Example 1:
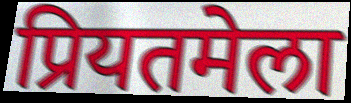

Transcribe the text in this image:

प्रियतमेला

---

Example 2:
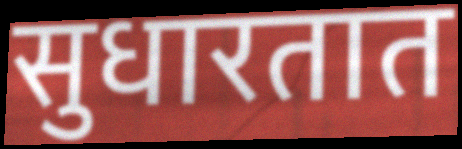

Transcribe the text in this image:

सुधारतात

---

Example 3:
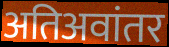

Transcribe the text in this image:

अतिअवांतर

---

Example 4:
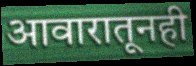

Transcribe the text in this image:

आवारातूनही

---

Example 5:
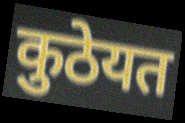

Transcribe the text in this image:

कुठेयत